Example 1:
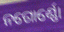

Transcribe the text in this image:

ନଗୋର୍ଣ୍ଣୋ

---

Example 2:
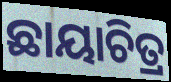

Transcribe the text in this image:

ଛାୟାଚିତ୍ର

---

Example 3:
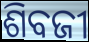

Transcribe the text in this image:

ଶିବଜୀ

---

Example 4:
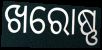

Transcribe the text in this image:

ଖରୋଷ୍ଣ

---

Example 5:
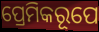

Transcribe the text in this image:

ପ୍ରେମିକରୂପେ